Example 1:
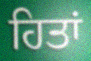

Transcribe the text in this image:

ਹਿਤਾਂ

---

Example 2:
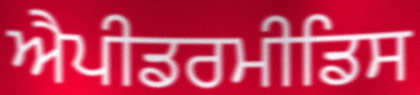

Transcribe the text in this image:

ਐਪੀਡਰਮੀਡਿਸ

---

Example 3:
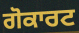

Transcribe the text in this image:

ਗੋਕਾਰਟ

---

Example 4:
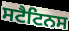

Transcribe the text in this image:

ਸਟੈਟਿਨਸ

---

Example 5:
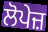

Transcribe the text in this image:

ਲੋਪੇਜ਼